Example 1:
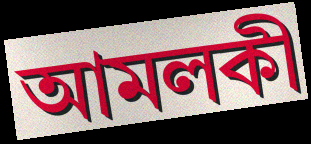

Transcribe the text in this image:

আমলকী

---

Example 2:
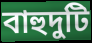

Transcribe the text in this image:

বাহুদুটি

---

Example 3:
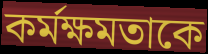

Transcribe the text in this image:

কর্মক্ষমতাকে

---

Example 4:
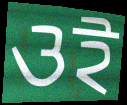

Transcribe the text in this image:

ওই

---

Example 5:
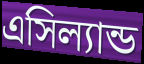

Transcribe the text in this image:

এসিল্যান্ড